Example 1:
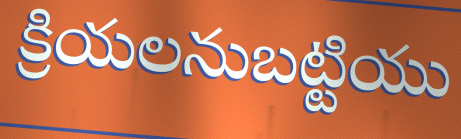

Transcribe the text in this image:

క్రియలనుబట్టియు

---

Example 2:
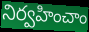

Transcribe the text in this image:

నిర్వహించాం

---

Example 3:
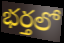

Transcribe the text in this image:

భర్తలో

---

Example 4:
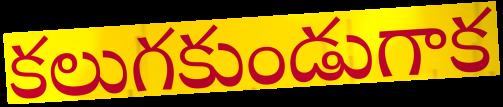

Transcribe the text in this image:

కలుగకుండుగాక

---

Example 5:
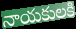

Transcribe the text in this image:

నాయకులకి